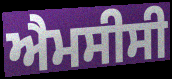
ਐਮਸੀਸੀ